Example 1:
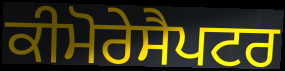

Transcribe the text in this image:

ਕੀਮੋਰੇਸੈਪਟਰ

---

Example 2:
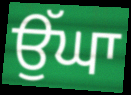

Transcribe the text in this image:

ਉੱਘਾ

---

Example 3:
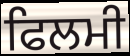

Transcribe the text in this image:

ਫਿਲਮੀ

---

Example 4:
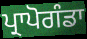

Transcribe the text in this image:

ਪ੍ਰਾਪੋਗੰਡਾ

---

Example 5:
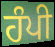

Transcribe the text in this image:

ਹੰਪੀ